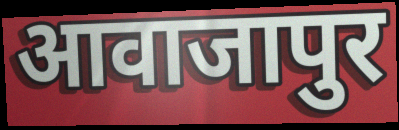
आवाजापुर